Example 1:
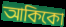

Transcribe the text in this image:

আকিকো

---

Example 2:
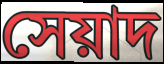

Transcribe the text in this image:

সেয়াদ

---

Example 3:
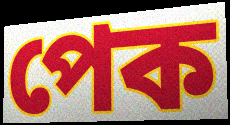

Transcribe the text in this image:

পেক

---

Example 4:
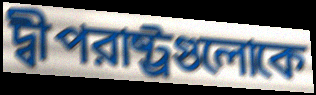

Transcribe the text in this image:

দ্বীপরাষ্ট্রগুলোকে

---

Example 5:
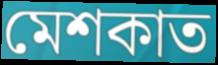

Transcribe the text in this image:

মেশকাত